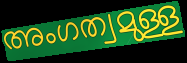
അംഗത്വമുള്ള